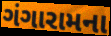
ગંગારામના